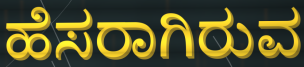
ಹೆಸರಾಗಿರುವ